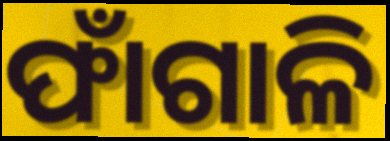
ଫାଁଗାଳି